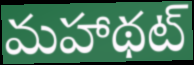
మహాథట్